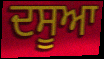
ਦਸੂਆ